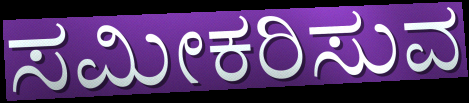
ಸಮೀಕರಿಸುವ